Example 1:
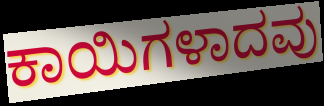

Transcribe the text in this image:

ಕಾಯಿಗಳಾದವು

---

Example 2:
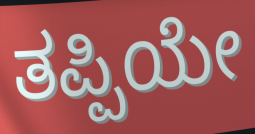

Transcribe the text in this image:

ತಪ್ಪಿಯೇ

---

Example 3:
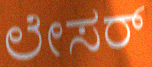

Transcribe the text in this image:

ಲೇಸರ್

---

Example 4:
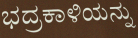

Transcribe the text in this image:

ಭದ್ರಕಾಳಿಯನ್ನು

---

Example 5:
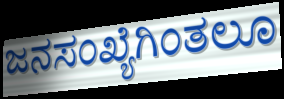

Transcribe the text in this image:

ಜನಸಂಖ್ಯೆಗಿಂತಲೂ